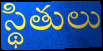
స్థితులు